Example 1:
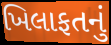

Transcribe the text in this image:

ખિલાફતનું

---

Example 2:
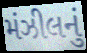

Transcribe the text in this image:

મંઝીલનું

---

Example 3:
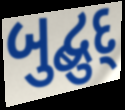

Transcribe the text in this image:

બુદ્બુદ્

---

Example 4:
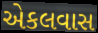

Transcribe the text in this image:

એકલવાસ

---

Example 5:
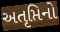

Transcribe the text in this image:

અતૃપ્તિનો